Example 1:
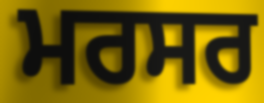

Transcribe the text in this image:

ਮਰਸਰ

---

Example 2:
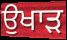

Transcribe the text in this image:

ਉਖਾੜ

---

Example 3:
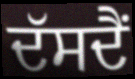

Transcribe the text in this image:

ਦੱਸਦੈਂ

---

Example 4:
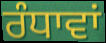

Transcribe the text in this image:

ਰੰਧਾਵਾਂ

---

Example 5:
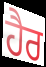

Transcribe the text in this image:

ਹੈਰ